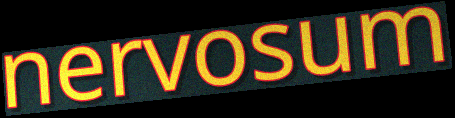
nervosum